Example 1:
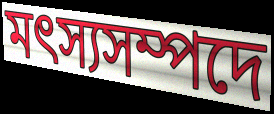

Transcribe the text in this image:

মৎস্যসম্পদে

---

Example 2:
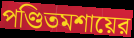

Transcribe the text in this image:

পণ্ডিতমশায়ের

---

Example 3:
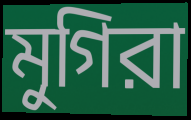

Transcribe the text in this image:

মুগিরা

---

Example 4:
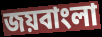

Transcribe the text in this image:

জয়বাংলা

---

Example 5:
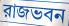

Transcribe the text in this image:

রাজভবন